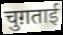
चुग़ताई